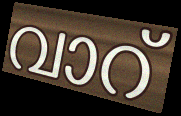
വാറ്